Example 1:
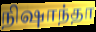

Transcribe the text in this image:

நிஷாந்தா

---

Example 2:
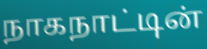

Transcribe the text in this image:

நாகநாட்டின்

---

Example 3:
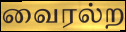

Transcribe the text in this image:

வைரல்ற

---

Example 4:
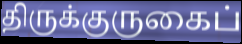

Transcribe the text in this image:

திருக்குருகைப்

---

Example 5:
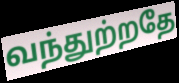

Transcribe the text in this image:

வந்துற்றதே